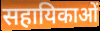
सहायिकाओं